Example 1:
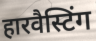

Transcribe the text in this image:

हारवैस्टिंग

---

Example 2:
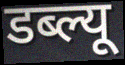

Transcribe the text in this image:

डब्ल्यू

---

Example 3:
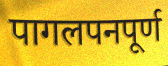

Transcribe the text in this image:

पागलपनपूर्ण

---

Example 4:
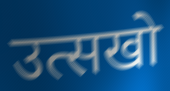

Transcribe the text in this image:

उत्सखो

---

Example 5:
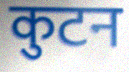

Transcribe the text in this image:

कुटन